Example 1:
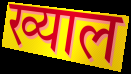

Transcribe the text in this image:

ख्याल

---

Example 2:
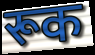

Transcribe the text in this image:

रूक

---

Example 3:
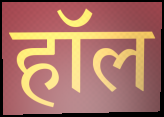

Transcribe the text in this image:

हॉल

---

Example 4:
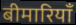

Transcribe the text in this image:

बीमारियाँ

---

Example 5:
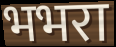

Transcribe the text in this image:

भभरा